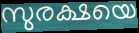
സുരക്ഷയെ